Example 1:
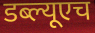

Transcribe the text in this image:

डब्ल्यूएच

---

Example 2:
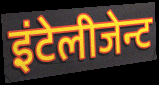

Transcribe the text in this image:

इंटेलीजेन्ट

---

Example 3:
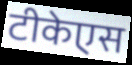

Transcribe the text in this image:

टीकेएस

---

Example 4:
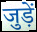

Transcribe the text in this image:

जुड़ें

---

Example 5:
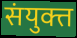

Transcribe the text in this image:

संयुक्त